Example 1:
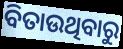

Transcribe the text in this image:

ବିତାଉଥିବାରୁ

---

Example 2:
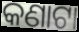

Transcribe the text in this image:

କଣାଟା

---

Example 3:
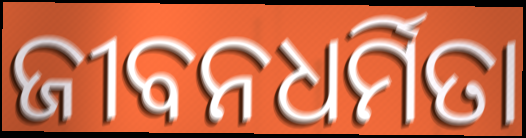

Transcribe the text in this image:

ଜୀବନଧର୍ମିତା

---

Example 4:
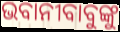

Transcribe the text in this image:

ଭବାନୀବାବୁଙ୍କୁ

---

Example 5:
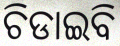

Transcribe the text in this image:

ଚିଡାଇବି